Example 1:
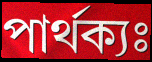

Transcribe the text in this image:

পার্থক্যঃ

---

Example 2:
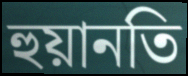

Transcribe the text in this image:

হুয়ানতি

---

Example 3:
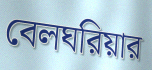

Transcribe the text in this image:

বেলঘরিয়ার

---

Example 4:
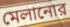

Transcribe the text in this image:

মেলানোর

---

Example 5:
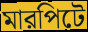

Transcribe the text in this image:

মারপিটে